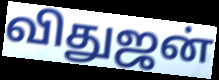
விதுஜன்